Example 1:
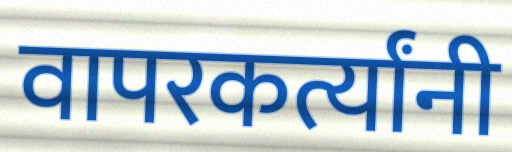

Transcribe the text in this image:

वापरकर्त्यांनी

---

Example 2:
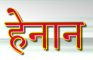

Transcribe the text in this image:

हेनान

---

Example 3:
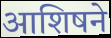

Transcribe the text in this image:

आशिषने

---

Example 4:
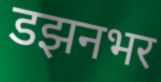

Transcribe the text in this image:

डझनभर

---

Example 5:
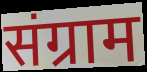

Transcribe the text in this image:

संग्राम